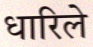
धारिले